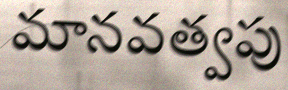
మానవత్వపు